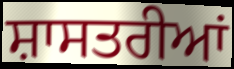
ਸ਼ਾਸਤਰੀਆਂ